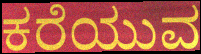
ಕರೆಯುವ